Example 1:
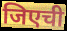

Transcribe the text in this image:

जिएची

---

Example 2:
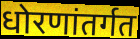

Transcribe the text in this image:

धोरणांतर्गत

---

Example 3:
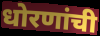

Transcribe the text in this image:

धोरणांची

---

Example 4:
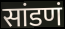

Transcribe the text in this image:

सांडणं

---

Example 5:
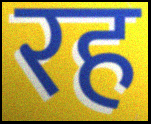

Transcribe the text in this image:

रह